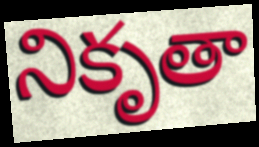
నికృతా